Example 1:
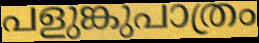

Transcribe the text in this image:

പളുങ്കുപാത്രം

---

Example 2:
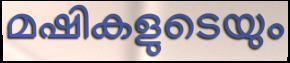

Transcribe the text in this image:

മഷികളുടെയും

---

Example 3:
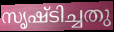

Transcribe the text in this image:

സൃഷ്ടിച്ചതു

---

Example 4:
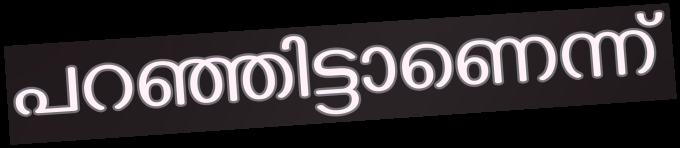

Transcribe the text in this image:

പറഞ്ഞിട്ടാണെന്ന്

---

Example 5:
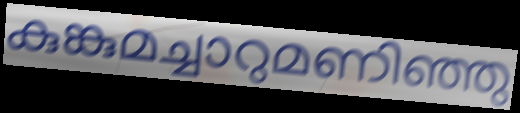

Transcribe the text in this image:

കുങ്കുമച്ചാറുമണിഞ്ഞു